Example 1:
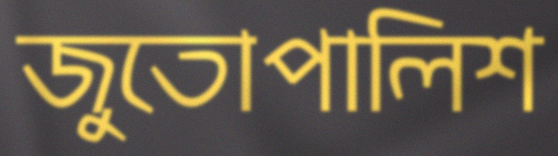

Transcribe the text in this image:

জুতোপালিশ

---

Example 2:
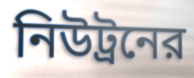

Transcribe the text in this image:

নিউট্রনের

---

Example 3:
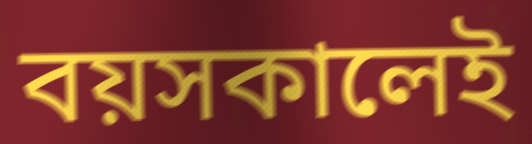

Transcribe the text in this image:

বয়সকালেই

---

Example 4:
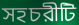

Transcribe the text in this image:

সহচরীটি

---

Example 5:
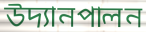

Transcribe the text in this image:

উদ্যানপালন